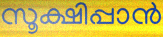
സൂക്ഷിപ്പാൻ